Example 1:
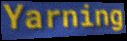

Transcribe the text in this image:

Yarning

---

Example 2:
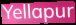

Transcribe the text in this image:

Yellapur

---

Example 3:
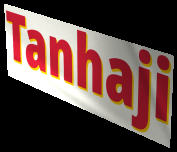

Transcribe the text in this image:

Tanhaji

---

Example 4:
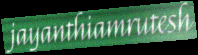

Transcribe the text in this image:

jayanthiamrutesh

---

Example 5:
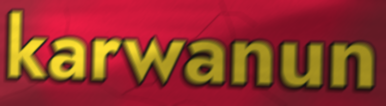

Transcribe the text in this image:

karwanun